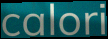
calori